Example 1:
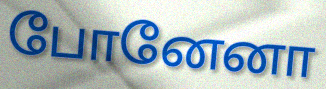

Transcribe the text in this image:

போனேனா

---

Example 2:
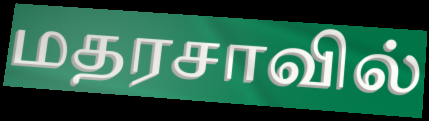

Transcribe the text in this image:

மதரசாவில்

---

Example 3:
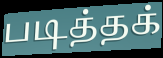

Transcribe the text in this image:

படித்தக்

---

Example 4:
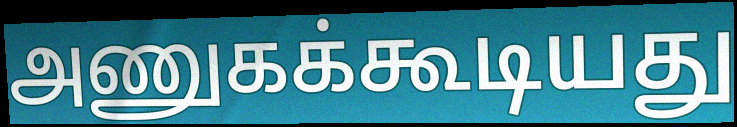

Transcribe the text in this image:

அணுகக்கூடியது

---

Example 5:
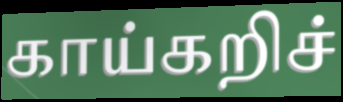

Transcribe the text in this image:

காய்கறிச்